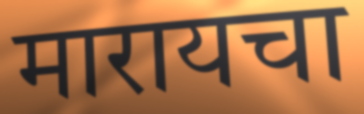
मारायचा